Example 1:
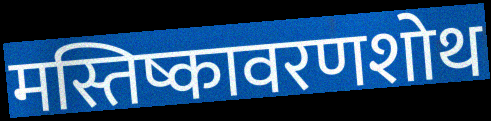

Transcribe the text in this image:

मस्तिष्कावरणशोथ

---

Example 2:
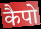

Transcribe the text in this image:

कैपो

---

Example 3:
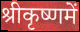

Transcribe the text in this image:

श्रीकृष्णमें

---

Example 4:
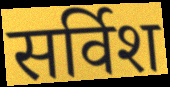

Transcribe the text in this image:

सर्विश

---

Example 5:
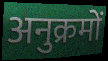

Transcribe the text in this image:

अनुक्रमों